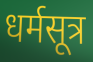
धर्मसूत्र